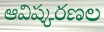
ఆవిష్కరణల